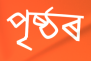
পৃষ্ঠৰ